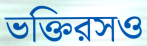
ভক্তিরসও